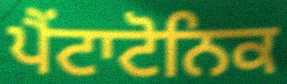
ਪੈਂਟਾਟੋਨਿਕ